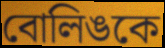
বোলিঙকে